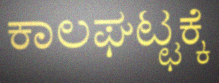
ಕಾಲಘಟ್ಟಕ್ಕೆ